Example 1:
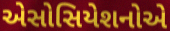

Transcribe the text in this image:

એસોસિયેશનોએ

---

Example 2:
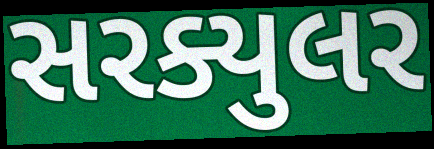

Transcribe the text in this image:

સરક્યુલર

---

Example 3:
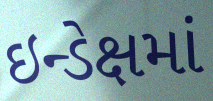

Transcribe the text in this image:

ઇન્ડેક્ષમાં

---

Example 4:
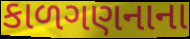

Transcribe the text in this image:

કાળગણનાના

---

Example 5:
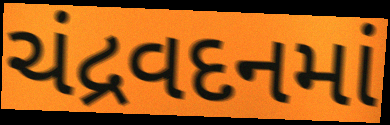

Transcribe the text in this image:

ચંદ્રવદનમાં